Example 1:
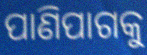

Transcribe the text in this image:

ପାଣିପାଗକୁ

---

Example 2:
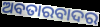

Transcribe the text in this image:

ଅବତାରବାଦର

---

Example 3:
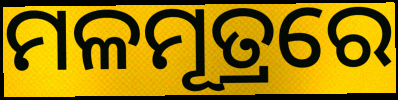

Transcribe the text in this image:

ମଳମୂତ୍ରରେ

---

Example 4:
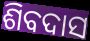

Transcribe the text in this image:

ଶିବଦାସ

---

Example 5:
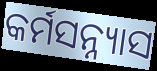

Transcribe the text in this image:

କର୍ମସନ୍ନ୍ୟାସ